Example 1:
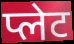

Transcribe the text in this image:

प्लेट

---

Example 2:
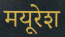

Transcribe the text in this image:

मयूरेश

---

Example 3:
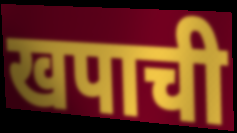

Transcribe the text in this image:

खपाची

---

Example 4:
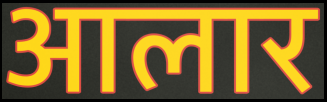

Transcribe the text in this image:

आलार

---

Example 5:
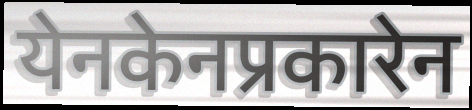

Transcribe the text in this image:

येनकेनप्रकारेन